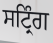
ਸਟ੍ਰਿੰਗ